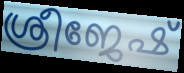
ശ്രീജേഷ്